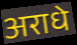
अराधे